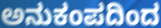
ಅನುಕಂಪದಿಂದ